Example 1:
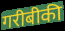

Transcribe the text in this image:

गरीबीकी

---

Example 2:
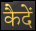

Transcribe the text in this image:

कैदें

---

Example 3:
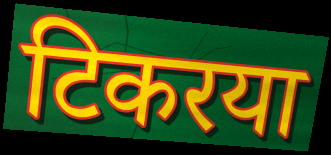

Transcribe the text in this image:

टिकरया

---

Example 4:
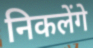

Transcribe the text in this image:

निकलेंगे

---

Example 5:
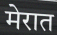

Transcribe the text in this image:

मेरात